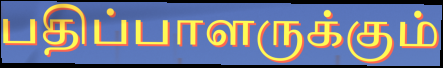
பதிப்பாளருக்கும்